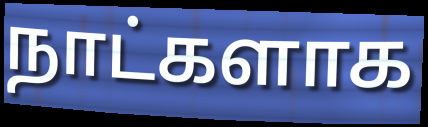
நாட்களாக